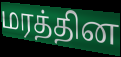
மரத்தின